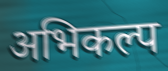
अभिकल्प